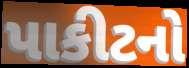
પાકીટનો